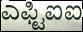
ಎಫ್ಟಿಐಐ